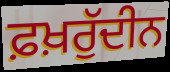
ਫ਼ਖ਼ਰੁੱਦੀਨ